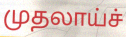
முதலாய்ச்